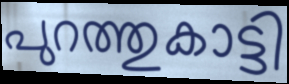
പുറത്തുകാട്ടി